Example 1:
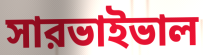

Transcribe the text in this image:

সারভাইভাল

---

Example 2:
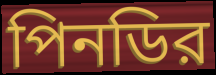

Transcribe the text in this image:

পিনডির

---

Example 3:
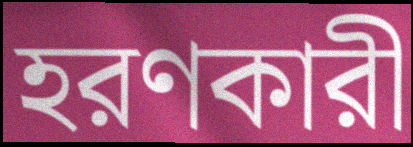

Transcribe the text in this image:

হরণকারী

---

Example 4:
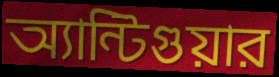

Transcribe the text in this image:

অ্যান্টিগুয়ার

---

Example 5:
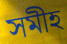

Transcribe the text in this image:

সমীহ